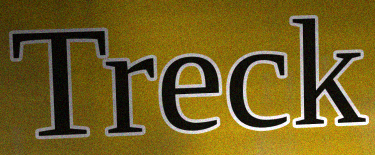
Treck